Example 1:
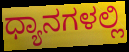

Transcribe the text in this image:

ಧ್ಯಾನಗಳಲ್ಲಿ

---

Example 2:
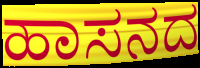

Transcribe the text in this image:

ಹಾಸನದ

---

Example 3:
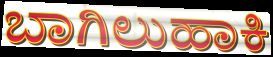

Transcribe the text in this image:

ಬಾಗಿಲುಹಾಕಿ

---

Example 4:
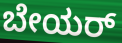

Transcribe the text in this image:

ಬೇಯರ್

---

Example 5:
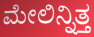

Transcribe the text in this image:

ಮೇಲಿನ್ನಿತ್ತ